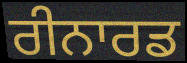
ਰੀਨਾਰਡ